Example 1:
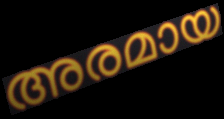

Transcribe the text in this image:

അരമായ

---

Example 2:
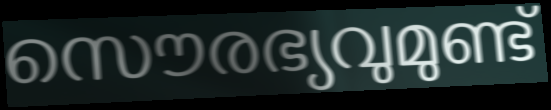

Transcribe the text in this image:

സൌരഭ്യവുമുണ്ട്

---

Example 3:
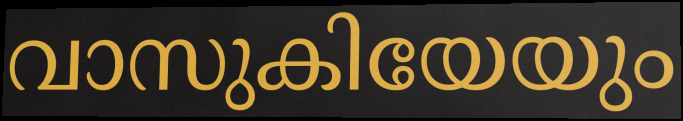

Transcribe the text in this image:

വാസുകിയേയും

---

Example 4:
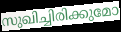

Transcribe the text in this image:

സുഖിച്ചിരിക്കുമോ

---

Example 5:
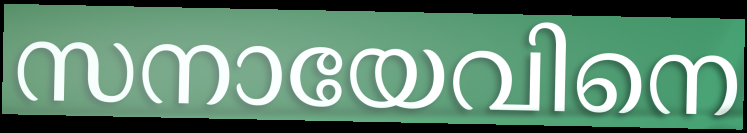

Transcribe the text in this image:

സനായേവിനെ